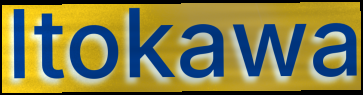
Itokawa